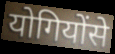
योगियोंसे